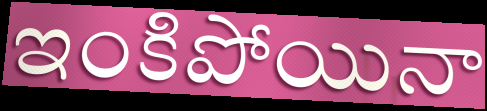
ఇంకిపోయినా